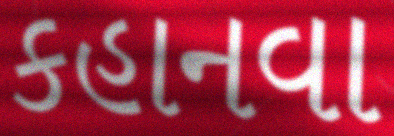
કહાનવા